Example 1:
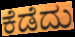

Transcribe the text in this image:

ಕೆಡೆದು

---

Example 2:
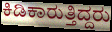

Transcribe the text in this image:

ಕಿಡಿಕಾರುತ್ತಿದ್ದರು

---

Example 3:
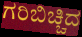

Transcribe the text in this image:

ಗರಿಬಿಚ್ಚಿದ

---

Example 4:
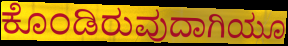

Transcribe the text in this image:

ಕೊಂಡಿರುವುದಾಗಿಯೂ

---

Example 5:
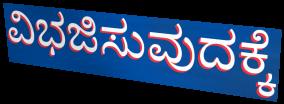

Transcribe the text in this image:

ವಿಭಜಿಸುವುದಕ್ಕೆ